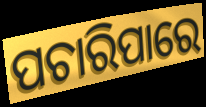
ପଚାରିପାରେ